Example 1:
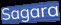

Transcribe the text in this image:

Sagara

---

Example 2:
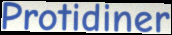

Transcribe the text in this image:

Protidiner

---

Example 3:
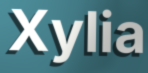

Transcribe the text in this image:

Xylia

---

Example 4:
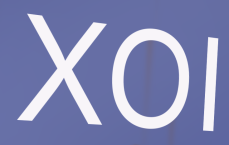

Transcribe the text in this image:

XOI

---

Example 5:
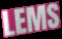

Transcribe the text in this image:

LEMS